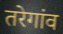
तरेगांव